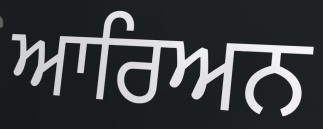
ਆਰਿਅਨ